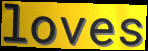
loves